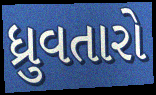
ધ્રુવતારો